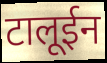
टालूईन